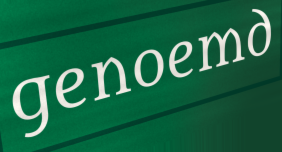
genoemd